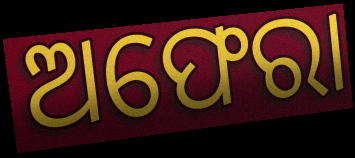
ଅଫେରା